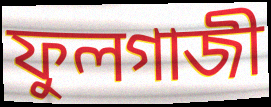
ফুলগাজী